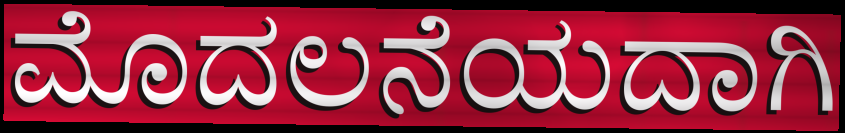
ಮೊದಲನೆಯದಾಗಿ